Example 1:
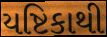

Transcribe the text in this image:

યષ્ટિકાથી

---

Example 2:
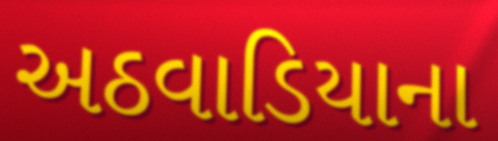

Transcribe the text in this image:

અઠવાડિયાના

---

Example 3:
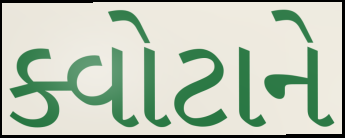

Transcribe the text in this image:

ક્વોટાને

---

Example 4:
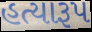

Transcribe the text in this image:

હત્યારૂપ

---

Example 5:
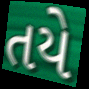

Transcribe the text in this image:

તયે